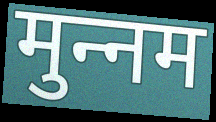
मुन्नम